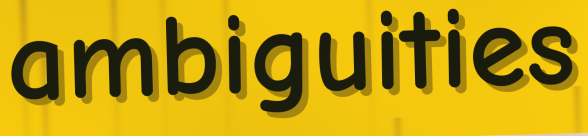
ambiguities